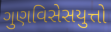
ગુણવિસેસયુત્તો